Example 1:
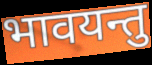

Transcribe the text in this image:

भावयन्तु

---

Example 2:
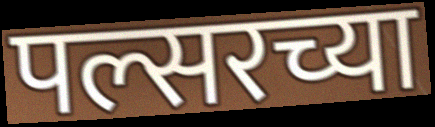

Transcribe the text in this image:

पल्सरच्या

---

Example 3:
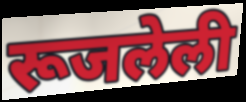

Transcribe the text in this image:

रूजलेली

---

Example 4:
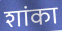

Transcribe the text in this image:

शांका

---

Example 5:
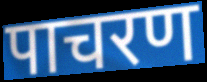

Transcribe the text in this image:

पाचरण